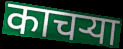
काचऱ्या